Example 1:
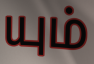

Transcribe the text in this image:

யும்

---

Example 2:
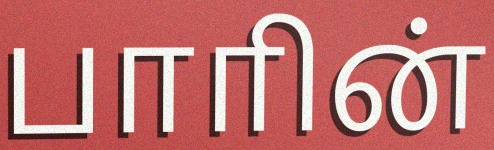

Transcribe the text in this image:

பாரின்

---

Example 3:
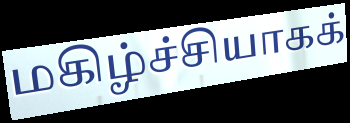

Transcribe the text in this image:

மகிழ்ச்சியாகக்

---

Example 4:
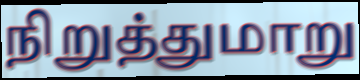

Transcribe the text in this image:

நிறுத்துமாறு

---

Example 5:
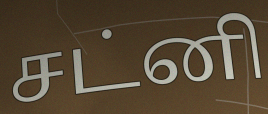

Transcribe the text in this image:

சட்னி